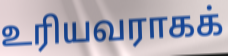
உரியவராகக்